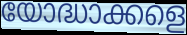
യോദ്ധാക്കളെ